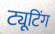
ट्यूटिंग